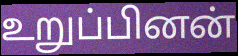
உறுப்பினன்